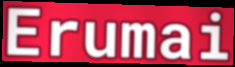
Erumai